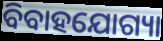
ବିବାହଯୋଗ୍ୟା